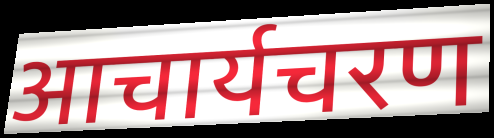
आचार्यचरण